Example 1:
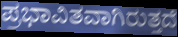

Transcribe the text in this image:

ಪ್ರಭಾವಿತವಾಗಿರುತ್ತದೆ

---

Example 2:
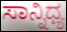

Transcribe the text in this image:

ಸಾನ್ನಿಧ್ಯ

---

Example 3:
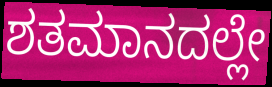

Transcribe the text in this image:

ಶತಮಾನದಲ್ಲೇ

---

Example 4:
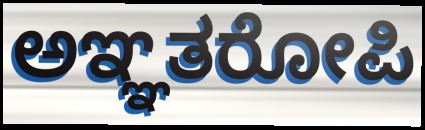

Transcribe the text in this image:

ಅಞ್ಞತರೋಪಿ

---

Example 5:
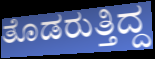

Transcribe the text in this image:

ತೊಡರುತ್ತಿದ್ದ